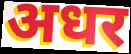
अधर